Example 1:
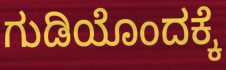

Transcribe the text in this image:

ಗುಡಿಯೊಂದಕ್ಕೆ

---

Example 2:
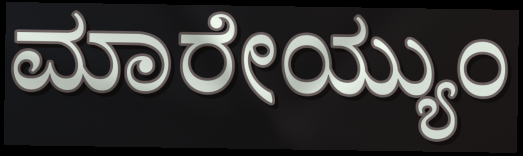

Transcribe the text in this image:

ಮಾರೇಯ್ಯುಂ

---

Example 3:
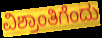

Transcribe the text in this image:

ವಿಶ್ರಾಂತಿಗೆಂದು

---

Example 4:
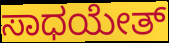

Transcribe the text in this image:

ಸಾಧಯೇತ್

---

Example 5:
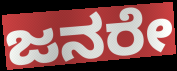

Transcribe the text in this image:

ಜನರೇ